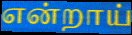
என்றாய்